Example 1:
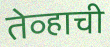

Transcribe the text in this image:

तेव्हाची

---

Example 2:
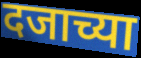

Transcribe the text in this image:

दजाच्या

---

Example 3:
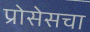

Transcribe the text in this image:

प्रोसेसचा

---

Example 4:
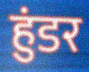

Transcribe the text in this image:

हुंडर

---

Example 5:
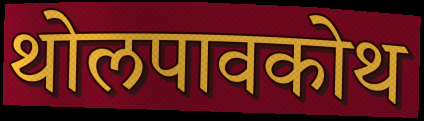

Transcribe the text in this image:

थोलपावकोथ